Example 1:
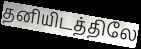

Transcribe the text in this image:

தனியிடத்திலே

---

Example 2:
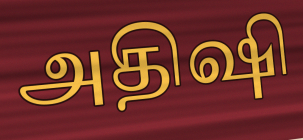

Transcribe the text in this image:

அதிஷி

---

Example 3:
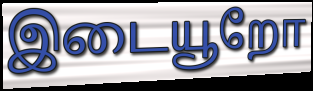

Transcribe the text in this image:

இடையூறோ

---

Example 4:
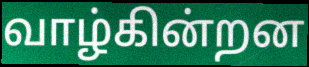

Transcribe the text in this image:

வாழ்கின்றன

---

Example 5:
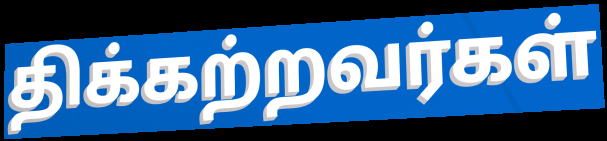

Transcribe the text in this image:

திக்கற்றவர்கள்